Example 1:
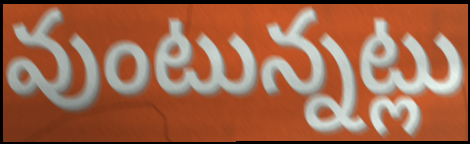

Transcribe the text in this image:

వుంటున్నట్లు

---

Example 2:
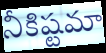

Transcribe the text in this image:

నీకిష్టమా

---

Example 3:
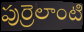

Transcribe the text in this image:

పుర్రెలాంటి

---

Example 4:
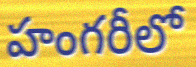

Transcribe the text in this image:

హంగరీలో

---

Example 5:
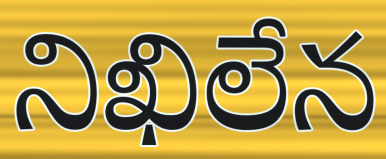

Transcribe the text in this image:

నిఖిలేన